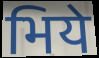
भिये